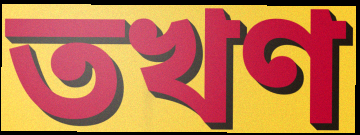
তখণ